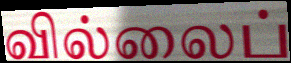
வில்லைப்